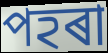
পহৰা